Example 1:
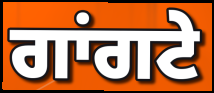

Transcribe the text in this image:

ਗਾਂਗਟੇ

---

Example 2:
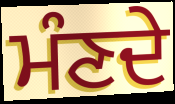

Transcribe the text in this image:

ਮੰਣਦੇ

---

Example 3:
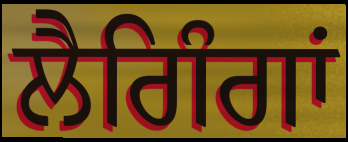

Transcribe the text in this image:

ਲੈਗਿੰਗਾਂ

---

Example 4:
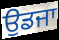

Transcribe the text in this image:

ਉਡਜਾ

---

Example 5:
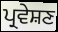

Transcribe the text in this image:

ਪ੍ਰਵੇਸ਼ਣ